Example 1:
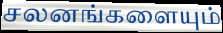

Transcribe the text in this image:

சலனங்களையும்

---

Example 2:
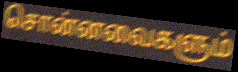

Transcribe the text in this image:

சொன்னவைகளும்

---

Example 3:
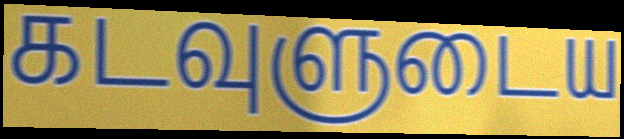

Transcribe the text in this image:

கடவுளுடைய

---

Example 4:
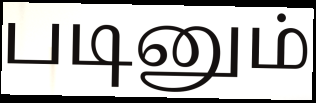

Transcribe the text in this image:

படினும்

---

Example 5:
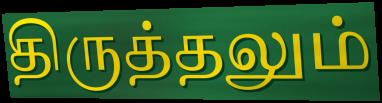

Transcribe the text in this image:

திருத்தலும்